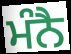
ਮੰਨੈ